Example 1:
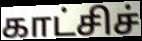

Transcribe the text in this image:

காட்சிச்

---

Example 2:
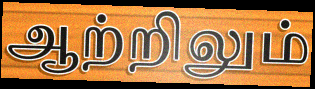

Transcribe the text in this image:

ஆற்றிலும்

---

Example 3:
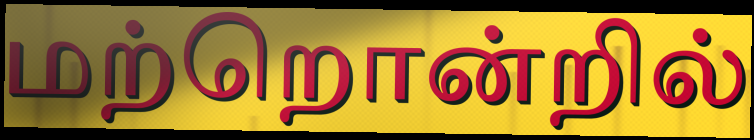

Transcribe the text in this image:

மற்றொன்றில்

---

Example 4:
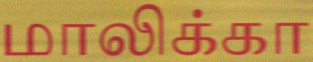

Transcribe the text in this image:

மாலிக்கா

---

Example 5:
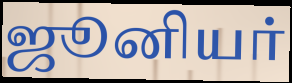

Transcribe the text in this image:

ஜூனியர்